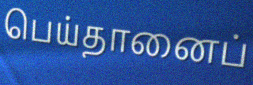
பெய்தானைப்